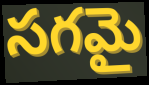
సగమై